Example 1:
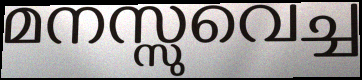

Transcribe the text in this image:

മനസ്സുവെച്ച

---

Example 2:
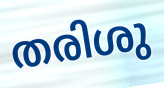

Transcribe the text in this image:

തരിശു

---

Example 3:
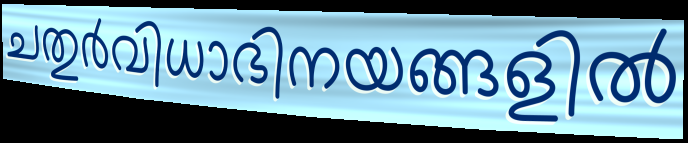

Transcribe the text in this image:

ചതുർവിധാഭിനയങ്ങളിൽ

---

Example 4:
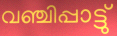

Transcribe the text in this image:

വഞ്ചിപ്പാട്ടു്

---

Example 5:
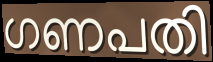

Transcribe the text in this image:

ഗണപതി